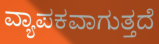
ವ್ಯಾಪಕವಾಗುತ್ತದೆ